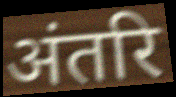
अंतरि